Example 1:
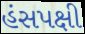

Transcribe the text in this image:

હંસપક્ષી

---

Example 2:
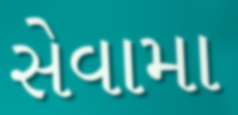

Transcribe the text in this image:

સેવામા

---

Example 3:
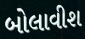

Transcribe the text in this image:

બોલાવીશ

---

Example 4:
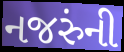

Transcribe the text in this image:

નજરુંની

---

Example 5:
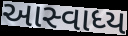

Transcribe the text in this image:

આસ્વાધ્ય